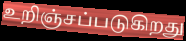
உறிஞ்சப்படுகிறது